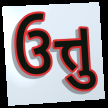
ઉત્તુ